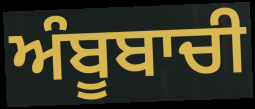
ਅੰਬੂਬਾਚੀ